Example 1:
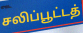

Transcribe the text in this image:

சலிப்பூட்டத்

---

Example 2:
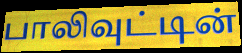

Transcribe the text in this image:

பாலிவுட்டின்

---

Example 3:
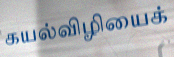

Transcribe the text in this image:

கயல்விழியைக்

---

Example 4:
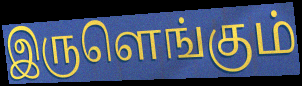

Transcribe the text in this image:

இருளெங்கும்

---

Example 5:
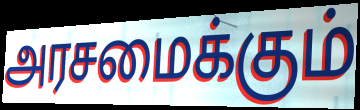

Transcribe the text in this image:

அரசமைக்கும்